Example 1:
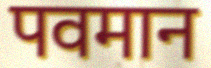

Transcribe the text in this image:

पवमान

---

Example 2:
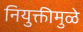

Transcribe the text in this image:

नियुक्तीमुळे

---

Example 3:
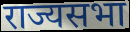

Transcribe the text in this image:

राज्यसभा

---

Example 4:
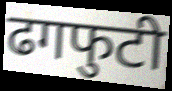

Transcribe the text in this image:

ढगफुटी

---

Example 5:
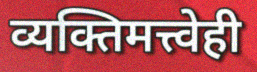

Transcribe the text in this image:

व्यक्तिमत्त्वेही